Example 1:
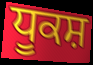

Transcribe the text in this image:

ਧੂਕਸ਼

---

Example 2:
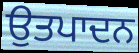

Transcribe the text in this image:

ਉਤਪਾਦਨ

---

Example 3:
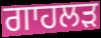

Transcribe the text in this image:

ਗਾਹਲੜ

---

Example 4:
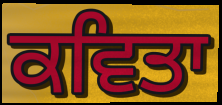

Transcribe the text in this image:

ਕਵਿਤਾ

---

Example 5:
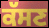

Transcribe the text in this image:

ਕੱਸਣ